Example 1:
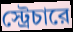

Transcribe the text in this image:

স্ট্রেচারে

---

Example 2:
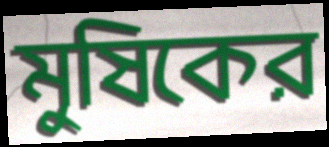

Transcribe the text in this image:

মুষিকের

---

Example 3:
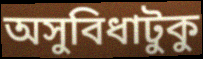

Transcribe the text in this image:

অসুবিধাটুকু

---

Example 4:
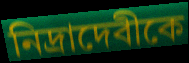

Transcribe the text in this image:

নিদ্রাদেবীকে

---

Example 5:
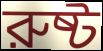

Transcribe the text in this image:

রুষ্ট